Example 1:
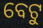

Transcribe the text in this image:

ବେଟୁ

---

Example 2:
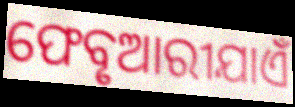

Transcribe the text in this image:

ଫେବୃଆରୀଯାଏଁ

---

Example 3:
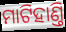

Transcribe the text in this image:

ମାଟିହାଣ୍ତି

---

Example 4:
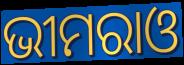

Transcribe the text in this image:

ଭୀମରାଓ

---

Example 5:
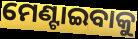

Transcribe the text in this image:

ମେଣ୍ଟାଇବାକୁ